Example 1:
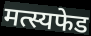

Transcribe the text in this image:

मत्स्यफेड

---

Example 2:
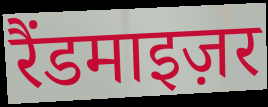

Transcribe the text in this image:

रैंडमाइज़र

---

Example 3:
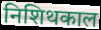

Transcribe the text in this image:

निशिथकाल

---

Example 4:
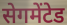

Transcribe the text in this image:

सेगमेंटेड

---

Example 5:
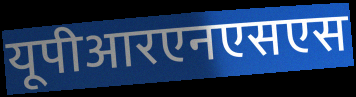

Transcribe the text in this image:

यूपीआरएनएसएस